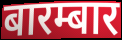
बारम्बार